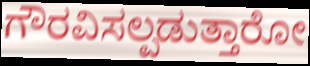
ಗೌರವಿಸಲ್ಪಡುತ್ತಾರೋ